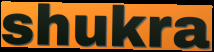
shukra